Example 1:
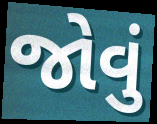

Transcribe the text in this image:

જોવું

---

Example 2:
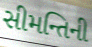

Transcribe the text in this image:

સીમન્તિની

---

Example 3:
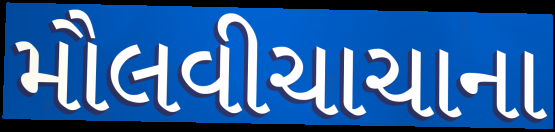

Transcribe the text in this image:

મૌલવીચાચાના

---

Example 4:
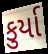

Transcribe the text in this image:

કુર્યા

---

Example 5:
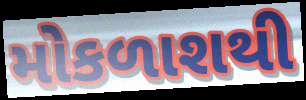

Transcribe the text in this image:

મોકળાશથી